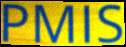
PMIS